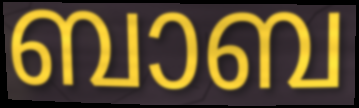
ബാബ